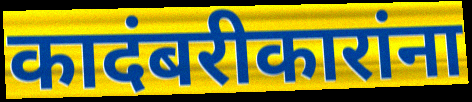
कादंबरीकारांना